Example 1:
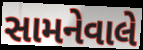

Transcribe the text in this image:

સામનેવાલે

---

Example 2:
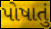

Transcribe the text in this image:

પોષાતું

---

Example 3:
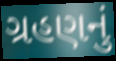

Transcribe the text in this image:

ગ્રહણનું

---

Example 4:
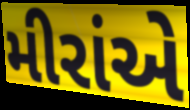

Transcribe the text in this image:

મીરાંએ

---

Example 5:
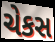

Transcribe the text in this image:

ચેકસ